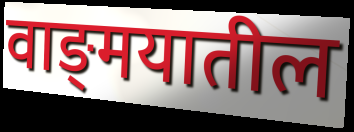
वाङ्मयातील